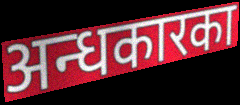
अन्धकारका